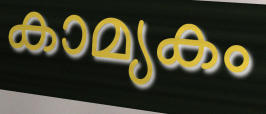
കാമ്യകം